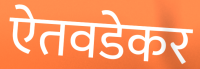
ऐतवडेकर